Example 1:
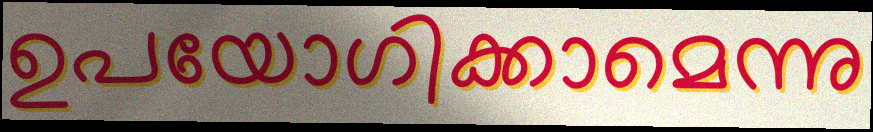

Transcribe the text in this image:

ഉപയോഗിക്കാമെന്നു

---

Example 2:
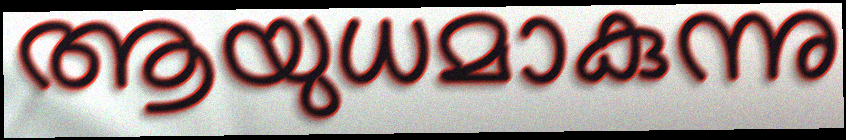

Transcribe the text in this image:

ആയുധമാകുന്നു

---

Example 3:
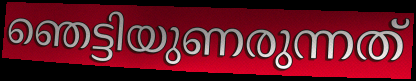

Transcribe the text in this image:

ഞെട്ടിയുണരുന്നത്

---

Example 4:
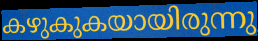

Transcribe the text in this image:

കഴുകുകയായിരുന്നു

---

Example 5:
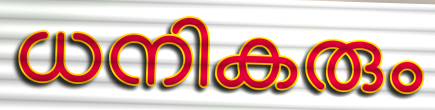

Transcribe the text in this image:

ധനികരും